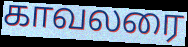
காவலரை